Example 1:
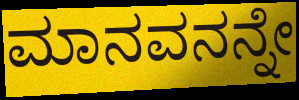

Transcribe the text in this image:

ಮಾನವನನ್ನೇ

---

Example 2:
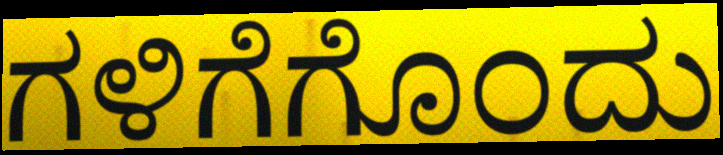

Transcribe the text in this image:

ಗಳಿಗೆಗೊಂದು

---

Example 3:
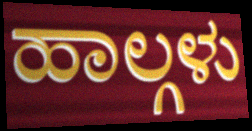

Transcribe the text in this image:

ಹಾಲ್ಗಳು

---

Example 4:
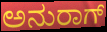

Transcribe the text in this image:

ಅನುರಾಗ್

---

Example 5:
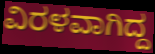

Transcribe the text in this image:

ವಿರಳವಾಗಿದ್ದ